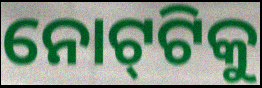
ନୋଟ୍‌ଟିକୁ